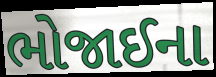
ભોજાઈના